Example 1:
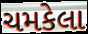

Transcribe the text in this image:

ચમકેલા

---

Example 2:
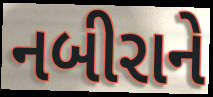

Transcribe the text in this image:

નબીરાને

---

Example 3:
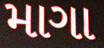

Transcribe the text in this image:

માગા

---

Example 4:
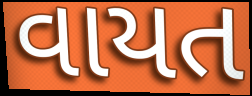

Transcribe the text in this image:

વાયત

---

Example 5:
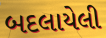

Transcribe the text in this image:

બદલાયેલી